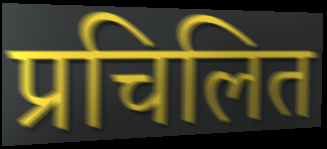
प्रचिलित